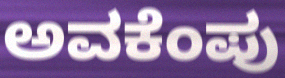
ಅವಕೆಂಪು